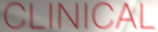
CLINICAL